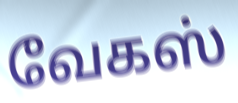
வேகஸ்